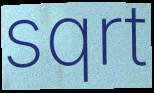
sqrt